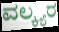
ವಲ್ಕ್ಯರ